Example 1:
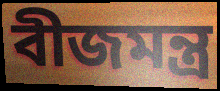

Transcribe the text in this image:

বীজমন্ত্র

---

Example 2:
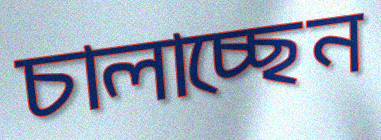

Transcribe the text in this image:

চালাচ্ছেন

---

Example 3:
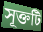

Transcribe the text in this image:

সূক্তটি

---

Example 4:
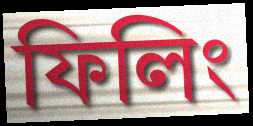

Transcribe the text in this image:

ফিলিং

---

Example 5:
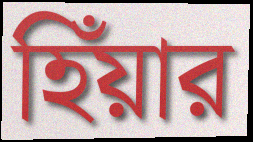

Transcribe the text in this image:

হিঁয়ার